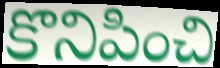
కొనిపించి